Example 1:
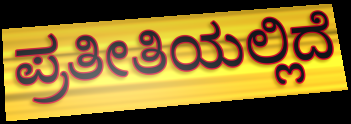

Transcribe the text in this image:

ಪ್ರತೀತಿಯಲ್ಲಿದೆ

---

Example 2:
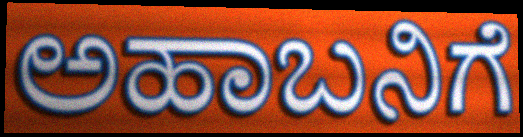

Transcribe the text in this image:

ಅಹಾಬನಿಗೆ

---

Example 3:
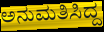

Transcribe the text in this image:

ಅನುಮತಿಸಿದ್ದ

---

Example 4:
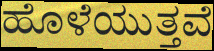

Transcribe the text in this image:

ಹೊಳೆಯುತ್ತವೆ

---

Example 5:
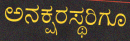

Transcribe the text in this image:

ಅನಕ್ಷರಸ್ಥರಿಗೂ